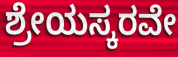
ಶ್ರೇಯಸ್ಕರವೇ